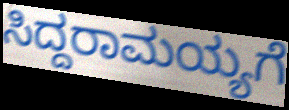
ಸಿದ್ದರಾಮಯ್ಯಗೆ